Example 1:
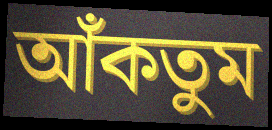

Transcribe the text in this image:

আঁকতুম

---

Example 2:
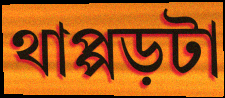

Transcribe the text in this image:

থাপ্পড়টা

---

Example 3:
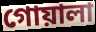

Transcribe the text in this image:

গোয়ালা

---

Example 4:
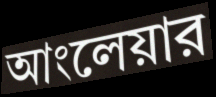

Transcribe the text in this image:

আংলেয়ার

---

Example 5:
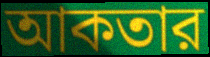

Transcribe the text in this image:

আকতার